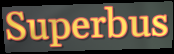
Superbus